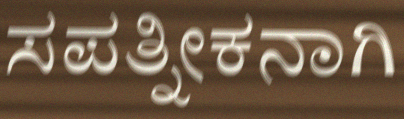
ಸಪತ್ನೀಕನಾಗಿ